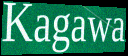
Kagawa